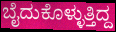
ಬೈದುಕೊಳ್ಳುತ್ತಿದ್ದ